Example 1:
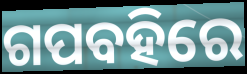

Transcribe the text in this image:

ଗପବହିରେ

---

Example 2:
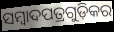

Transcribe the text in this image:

ସମ୍ୱାଦପତ୍ରଗୁଡ଼ିକର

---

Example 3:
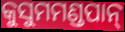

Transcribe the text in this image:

କୁସୁମମଣ୍ଡପାନ୍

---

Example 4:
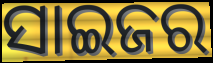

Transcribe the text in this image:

ସାଇଜର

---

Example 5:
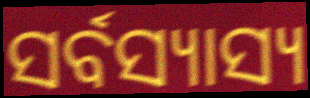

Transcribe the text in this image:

ସର୍ବସ୍ୟାସ୍ୟ